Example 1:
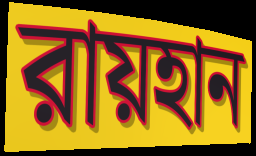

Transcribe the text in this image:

রায়হান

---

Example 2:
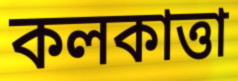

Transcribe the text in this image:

কলকাত্তা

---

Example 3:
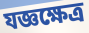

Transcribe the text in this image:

যজ্ঞক্ষেত্র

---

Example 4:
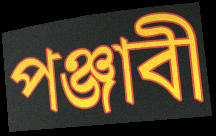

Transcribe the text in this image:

পঞ্জাবী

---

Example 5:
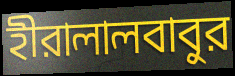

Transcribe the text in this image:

হীরালালবাবুর